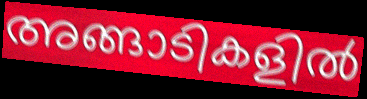
അങ്ങാടികളിൽ